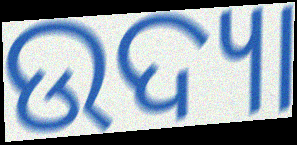
ଉଦ୍ୟା